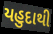
યહુદાથી